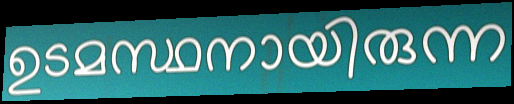
ഉടമസ്ഥനായിരുന്ന